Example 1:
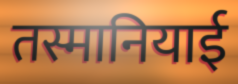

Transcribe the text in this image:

तस्मानियाई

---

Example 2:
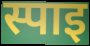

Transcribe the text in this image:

स्पाइ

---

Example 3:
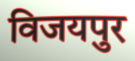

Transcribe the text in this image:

विजयपुर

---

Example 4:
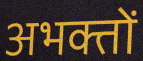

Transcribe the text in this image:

अभक्तों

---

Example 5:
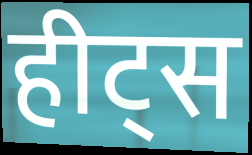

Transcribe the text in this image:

हीट्स